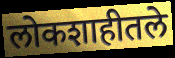
लोकशाहीतले